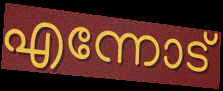
എന്നോട്